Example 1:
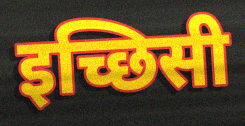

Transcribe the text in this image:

इच्छिसी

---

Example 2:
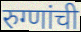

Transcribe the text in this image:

रुग्णांची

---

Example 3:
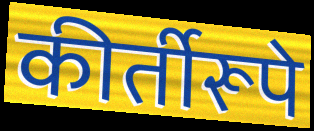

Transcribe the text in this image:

कीर्तीरूपे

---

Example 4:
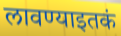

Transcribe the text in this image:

लावण्याइतकं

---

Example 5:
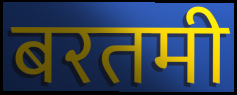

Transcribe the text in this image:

बरतमी